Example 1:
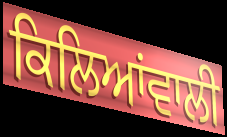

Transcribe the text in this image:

ਕਿਲਿਆਂਵਾਲੀ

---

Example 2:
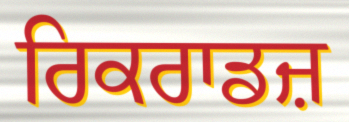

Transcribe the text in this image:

ਰਿਕਰਾਡਜ਼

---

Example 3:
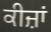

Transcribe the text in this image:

ਕੀਜ਼ਾਂ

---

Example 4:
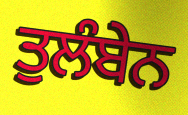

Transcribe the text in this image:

ਤੁਲੰਬੇਨ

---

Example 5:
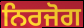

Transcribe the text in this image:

ਨਿਰਜੋਗ